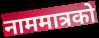
नाममात्रको